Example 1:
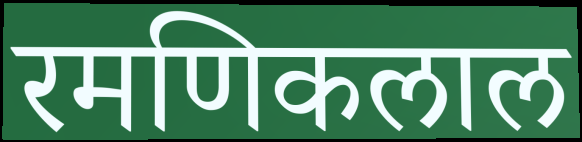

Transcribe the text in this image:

रमणिकलाल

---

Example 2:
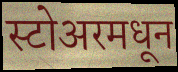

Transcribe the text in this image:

स्टोअरमधून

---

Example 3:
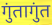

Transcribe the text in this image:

गुंतागुंत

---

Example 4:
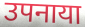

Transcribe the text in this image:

उपनाया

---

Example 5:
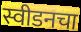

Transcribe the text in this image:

स्वीडनचा